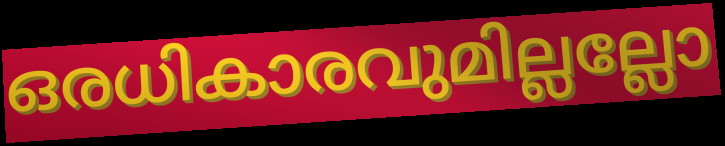
ഒരധികാരവുമില്ലല്ലോ